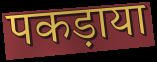
पकड़ाया